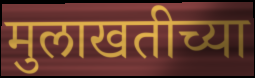
मुलाखतीच्या